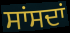
ਸਾਂਸਦਾਂ